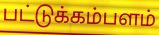
பட்டுக்கம்பளம்